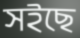
সইছে